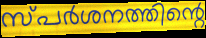
സ്പർശനത്തിന്റെ